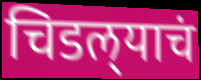
चिडल्याचं